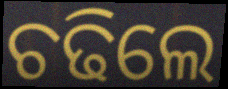
ଚଢିଲେ